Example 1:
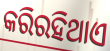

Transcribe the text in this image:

କରିରହିଥାଏ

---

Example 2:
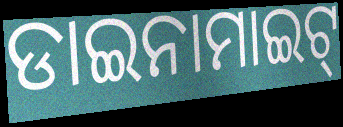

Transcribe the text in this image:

ଡାଇନାମାଇଟ୍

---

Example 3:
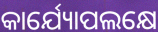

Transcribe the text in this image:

କାର୍ଯ୍ୟୋପଲକ୍ଷେ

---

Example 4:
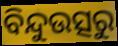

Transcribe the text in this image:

ବିନ୍ଦୁଉତ୍ସରୁ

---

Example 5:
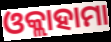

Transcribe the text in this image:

ଓକ୍ଲାହାମା